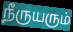
நீருயரும்